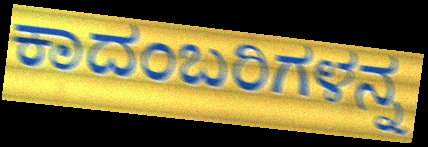
ಕಾದಂಬರಿಗಳನ್ನ